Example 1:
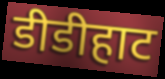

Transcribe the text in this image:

डीडीहाट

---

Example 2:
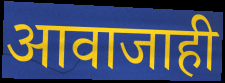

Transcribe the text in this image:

आवाजाही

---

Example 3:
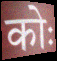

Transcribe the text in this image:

कोः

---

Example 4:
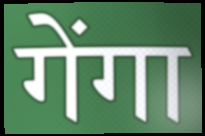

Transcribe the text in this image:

गेंगा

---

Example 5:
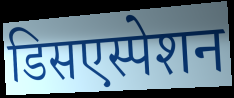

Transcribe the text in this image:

डिसएस्पेशन